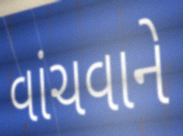
વાંચવાને